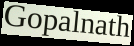
Gopalnath